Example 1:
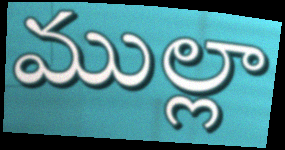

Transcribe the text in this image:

ముల్లా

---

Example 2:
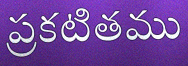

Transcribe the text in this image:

ప్రకటితము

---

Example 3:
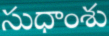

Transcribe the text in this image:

సుధాంశు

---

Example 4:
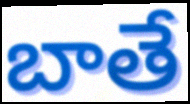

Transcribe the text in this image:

బాతే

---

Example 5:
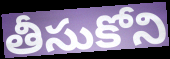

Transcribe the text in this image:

తీసుకోని